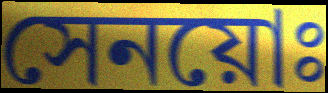
সেনয়োঃ